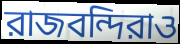
রাজবন্দিরাও